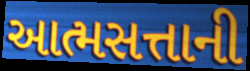
આત્મસત્તાની